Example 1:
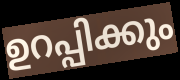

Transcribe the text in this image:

ഉറപ്പിക്കും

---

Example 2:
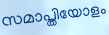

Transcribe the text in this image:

സമാപ്തിയോളം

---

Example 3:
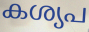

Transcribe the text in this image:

കശ്യപ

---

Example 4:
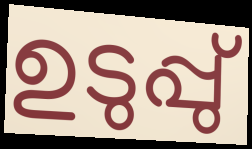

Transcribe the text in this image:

ഉടുപ്പു്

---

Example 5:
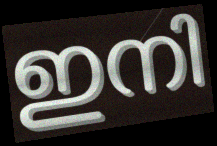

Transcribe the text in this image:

ഇനി